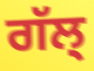
ਗੱਲ੍